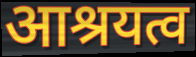
आश्रयत्व